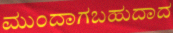
ಮುಂದಾಗಬಹುದಾದ